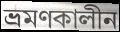
ভ্রমণকালীন